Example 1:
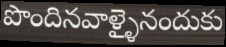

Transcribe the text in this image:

పొందినవాళ్ళైనందుకు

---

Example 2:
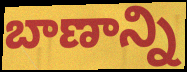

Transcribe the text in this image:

బాణాన్ని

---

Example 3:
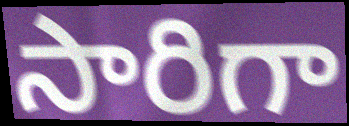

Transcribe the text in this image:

సారిగా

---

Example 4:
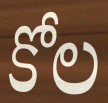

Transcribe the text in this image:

కోల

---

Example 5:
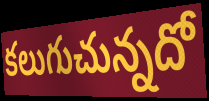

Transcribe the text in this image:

కలుగుచున్నదో